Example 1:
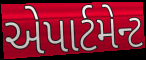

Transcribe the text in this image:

એપાર્ટમેન્ટ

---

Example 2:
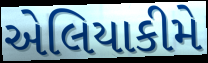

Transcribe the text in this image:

એલિયાકીમે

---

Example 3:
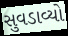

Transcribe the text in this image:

સુવડાવ્યો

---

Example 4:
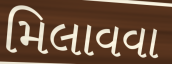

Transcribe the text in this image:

મિલાવવા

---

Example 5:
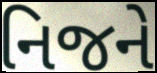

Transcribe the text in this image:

નિજને